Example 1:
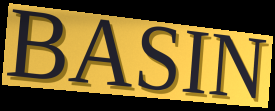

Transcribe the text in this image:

BASIN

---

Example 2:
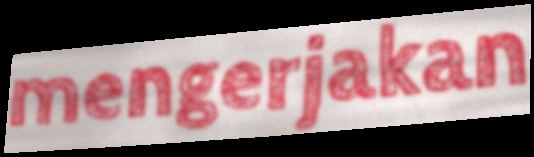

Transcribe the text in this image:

mengerjakan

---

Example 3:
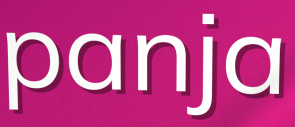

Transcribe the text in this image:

panja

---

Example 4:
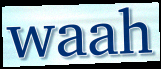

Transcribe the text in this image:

waah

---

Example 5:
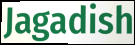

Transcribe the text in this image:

Jagadish